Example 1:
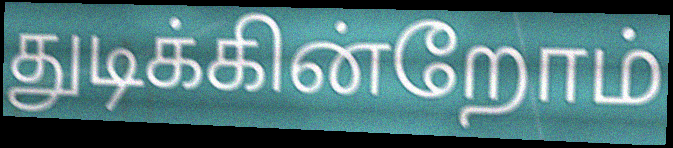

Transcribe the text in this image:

துடிக்கின்றோம்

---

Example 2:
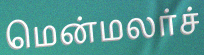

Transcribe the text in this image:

மென்மலர்ச்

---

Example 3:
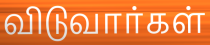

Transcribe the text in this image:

விடுவார்கள்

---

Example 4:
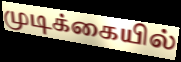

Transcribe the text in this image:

முடிக்கையில்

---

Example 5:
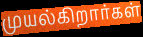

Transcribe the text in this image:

முயல்கிறார்கள்